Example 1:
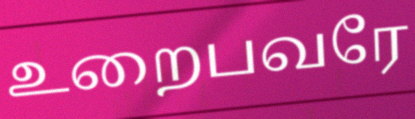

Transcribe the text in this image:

உறைபவரே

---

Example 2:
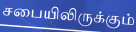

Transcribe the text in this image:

சபையிலிருக்கும்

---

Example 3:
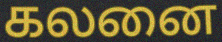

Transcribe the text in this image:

கலனை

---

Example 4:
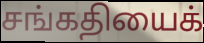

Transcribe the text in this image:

சங்கதியைக்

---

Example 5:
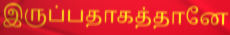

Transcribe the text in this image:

இருப்பதாகத்தானே